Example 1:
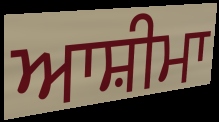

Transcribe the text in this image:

ਆਸ਼ੀਮਾ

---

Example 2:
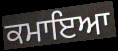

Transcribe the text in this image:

ਕਮਾਇਆ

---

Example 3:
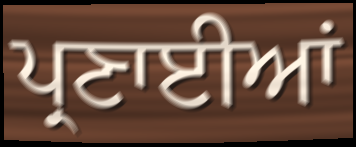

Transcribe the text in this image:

ਪ੍ਰਣਾਈਆਂ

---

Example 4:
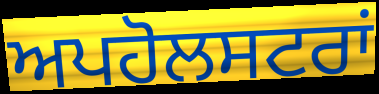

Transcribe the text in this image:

ਅਪਹੋਲਸਟਰਾਂ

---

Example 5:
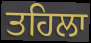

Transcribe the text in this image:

ਤਹਿਲਾ